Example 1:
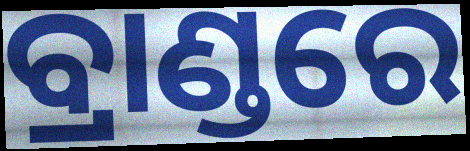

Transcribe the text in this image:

ବ୍ରାଣ୍ଡରେ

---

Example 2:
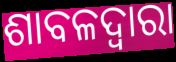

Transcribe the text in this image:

ଶାବଳଦ୍ୱାରା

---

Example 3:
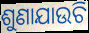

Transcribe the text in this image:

ଶୁଣାଯାଉଚି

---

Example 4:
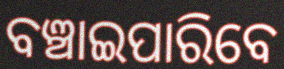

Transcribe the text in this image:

ବଞ୍ଚାଇପାରିବେ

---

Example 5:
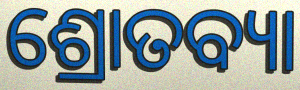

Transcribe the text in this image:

ଶ୍ରୋତବ୍ୟା